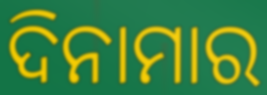
ଦିନାମାର